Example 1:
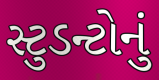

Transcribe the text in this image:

સ્ટુડન્ટોનું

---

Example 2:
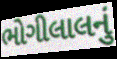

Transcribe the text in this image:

ભોગીલાલનું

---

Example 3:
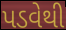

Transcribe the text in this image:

પડવેથી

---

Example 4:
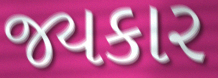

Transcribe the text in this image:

જ્યકાર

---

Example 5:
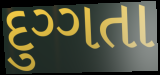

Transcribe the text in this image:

દુગ્ગતા